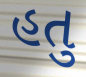
હતુ